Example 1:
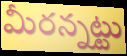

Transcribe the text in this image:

మీరన్నట్టు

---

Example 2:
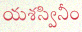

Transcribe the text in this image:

యశస్వినీం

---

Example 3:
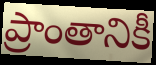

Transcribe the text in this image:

ప్రాంతానికీ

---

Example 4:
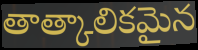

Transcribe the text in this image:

తాత్కాలికమైన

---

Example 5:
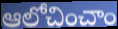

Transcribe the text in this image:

ఆలోచించాం